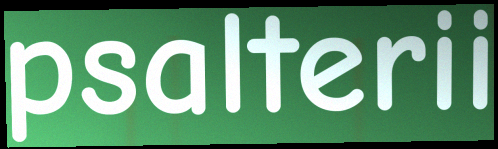
psalterii